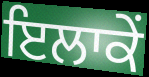
ਇਲਾਕੇਂ